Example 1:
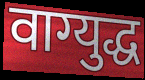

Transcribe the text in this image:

वाग्युद्ध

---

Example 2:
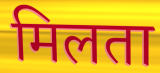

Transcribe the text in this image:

मिलता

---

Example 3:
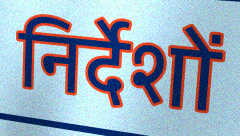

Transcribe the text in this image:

निर्देशों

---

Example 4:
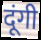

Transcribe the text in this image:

दूंगी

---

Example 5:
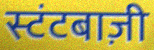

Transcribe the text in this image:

स्टंटबाज़ी